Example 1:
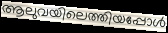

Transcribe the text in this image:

ആലുവയിലെത്തിയപ്പോൾ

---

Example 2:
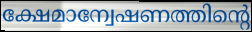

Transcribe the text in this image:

ക്ഷേമാന്വേഷണത്തിന്റെ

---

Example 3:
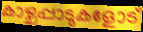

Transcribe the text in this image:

കാഴ്ചപ്പാടുകളോട്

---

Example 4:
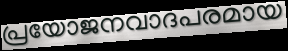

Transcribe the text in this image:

പ്രയോജനവാദപരമായ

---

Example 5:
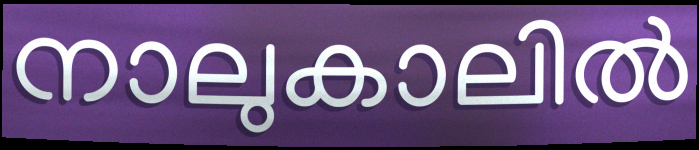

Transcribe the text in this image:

നാലുകാലിൽ